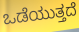
ಒಡೆಯುತ್ತದೆ